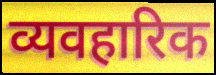
व्यवहारिक